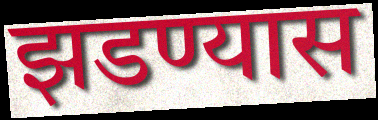
झडण्यास